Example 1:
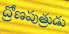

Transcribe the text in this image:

ద్రోణపుత్రుడు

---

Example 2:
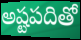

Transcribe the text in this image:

అష్టపదితో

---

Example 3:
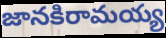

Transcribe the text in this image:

జానకిరామయ్య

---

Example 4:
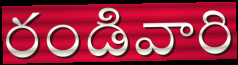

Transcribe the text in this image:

రండివారి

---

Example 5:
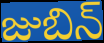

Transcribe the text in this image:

జుబిన్